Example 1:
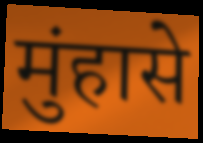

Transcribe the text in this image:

मुंहासे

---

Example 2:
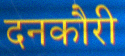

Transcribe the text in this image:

दनकौरी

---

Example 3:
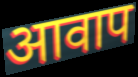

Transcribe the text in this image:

आवाप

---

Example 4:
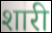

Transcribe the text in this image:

शारी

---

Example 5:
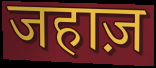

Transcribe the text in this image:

जहाज़